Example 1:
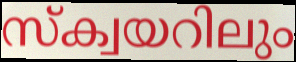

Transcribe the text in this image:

സ്ക്വയറിലും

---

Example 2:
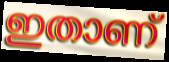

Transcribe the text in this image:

ഇതാണ്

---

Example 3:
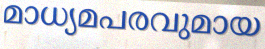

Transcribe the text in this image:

മാധ്യമപരവുമായ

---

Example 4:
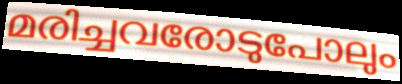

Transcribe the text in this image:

മരിച്ചവരോടുപോലും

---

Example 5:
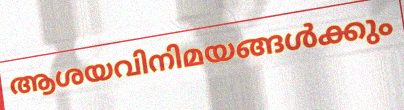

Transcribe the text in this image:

ആശയവിനിമയങ്ങൾക്കും